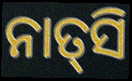
ନାତ୍‌ସି